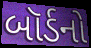
બૉર્ડનો